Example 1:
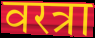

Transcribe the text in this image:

वरत्रा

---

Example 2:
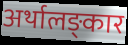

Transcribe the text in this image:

अर्थालङ्कार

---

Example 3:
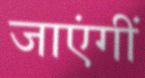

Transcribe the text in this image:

जाएंगीं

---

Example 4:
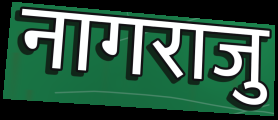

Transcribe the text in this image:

नागराजु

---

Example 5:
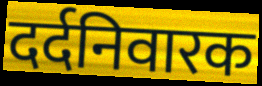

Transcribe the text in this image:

दर्दनिवारक